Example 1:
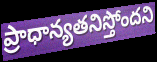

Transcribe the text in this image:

ప్రాధాన్యతనిస్తోందని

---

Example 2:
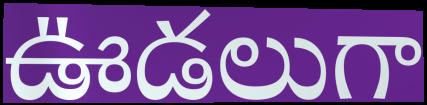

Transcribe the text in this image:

ఊడలుగా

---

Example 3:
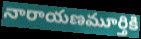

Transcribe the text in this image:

నారాయణమూర్తికి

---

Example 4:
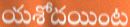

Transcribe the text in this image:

యశోదయింట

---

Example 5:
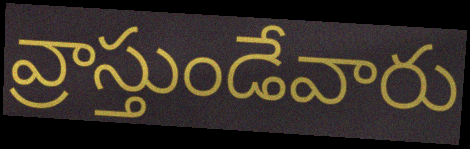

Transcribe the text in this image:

వ్రాస్తుండేవారు